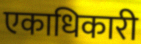
एकाधिकारी